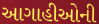
આગાહીઓની